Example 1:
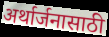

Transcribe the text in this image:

अर्थार्जनासाठी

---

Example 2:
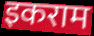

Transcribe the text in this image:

इकराम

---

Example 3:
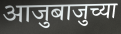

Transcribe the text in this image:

आजुबाजुच्या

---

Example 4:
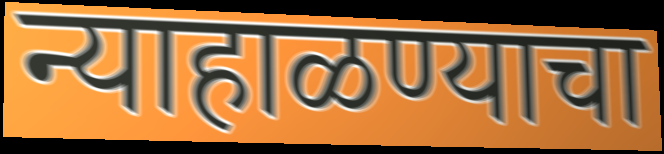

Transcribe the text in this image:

न्याहाळण्याचा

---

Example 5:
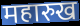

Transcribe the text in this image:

महारुख